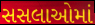
સસલાઓમાં